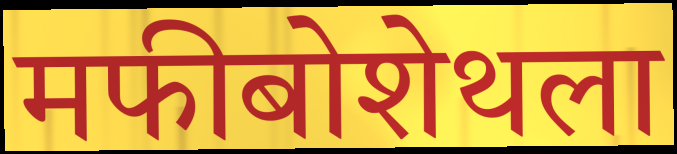
मफीबोशेथला